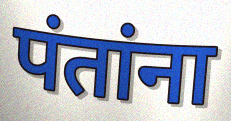
पंतांना